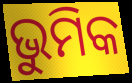
ଭୁମିକ